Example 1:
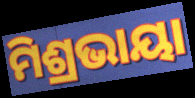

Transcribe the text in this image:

ମିଶ୍ରଭାୟା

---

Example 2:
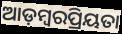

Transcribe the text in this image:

ଆଡ଼ମ୍ବରପ୍ରିୟତା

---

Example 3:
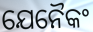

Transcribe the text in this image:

ଯେନୈକଂ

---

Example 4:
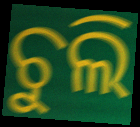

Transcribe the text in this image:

ଚୁଲି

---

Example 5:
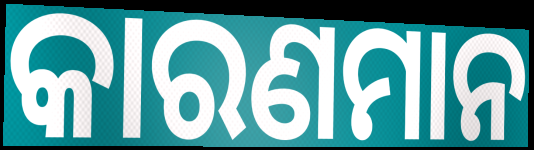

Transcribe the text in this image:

କାରଣମାନ